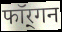
फॉर्गन